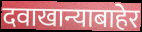
दवाखान्याबाहेर